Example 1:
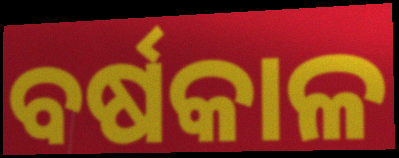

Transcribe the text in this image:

ବର୍ଷକାଳ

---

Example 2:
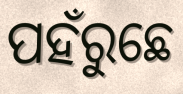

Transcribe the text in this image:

ପହଁରୁଛେ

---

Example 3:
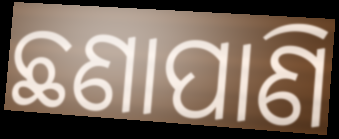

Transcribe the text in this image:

ଛଣାପାଣି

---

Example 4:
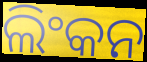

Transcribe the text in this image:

ଲିଂକନ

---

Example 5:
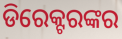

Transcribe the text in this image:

ଡିରେକ୍ଟରଙ୍କର